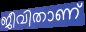
ജീവിതാണ്